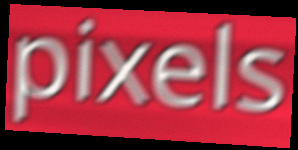
pixels